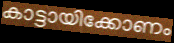
കാട്ടായിക്കോണം